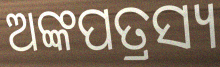
ଅଙ୍କପତ୍ରସ୍ୟ